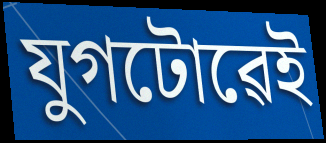
যুগটোৱেই